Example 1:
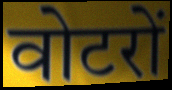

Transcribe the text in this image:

वोटरों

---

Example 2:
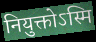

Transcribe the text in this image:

नियुक्तोऽस्मि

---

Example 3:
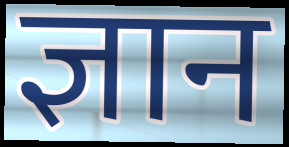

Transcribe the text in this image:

ज्ञान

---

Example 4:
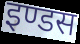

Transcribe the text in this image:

इण्डस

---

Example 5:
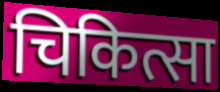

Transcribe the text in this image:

चिकित्सा